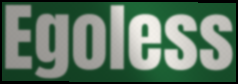
Egoless